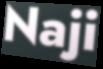
Naji